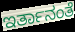
ಇರ್ತಾನಂತೆ